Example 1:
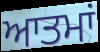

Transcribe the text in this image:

ਆਤਮਾਂ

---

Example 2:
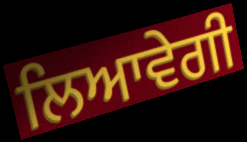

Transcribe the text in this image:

ਲਿਆਵੇਗੀ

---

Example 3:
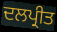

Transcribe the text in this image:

ਦਲਪ੍ਰੀਤ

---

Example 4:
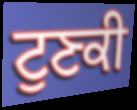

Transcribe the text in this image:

ਟੁਣਕੀ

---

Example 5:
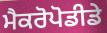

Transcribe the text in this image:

ਮੈਕਰੋਪੋਡੀਡੇ